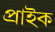
প্রাইক